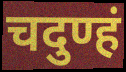
चदुण्हं